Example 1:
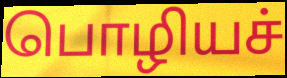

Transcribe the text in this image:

பொழியச்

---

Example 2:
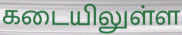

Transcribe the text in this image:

கடையிலுள்ள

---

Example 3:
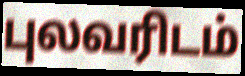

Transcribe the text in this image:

புலவரிடம்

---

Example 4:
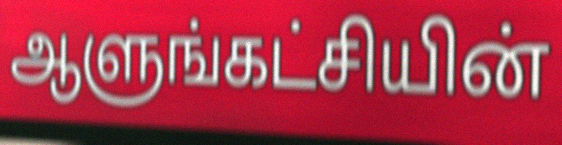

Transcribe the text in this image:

ஆளுங்கட்சியின்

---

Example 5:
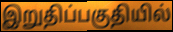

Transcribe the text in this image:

இறுதிப்பகுதியில்